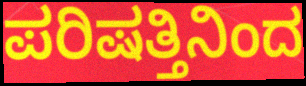
ಪರಿಷತ್ತಿನಿಂದ